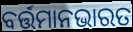
ବର୍ତ୍ତମାନଭାରତ